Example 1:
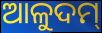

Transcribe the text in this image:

ଆଳୁଦମ୍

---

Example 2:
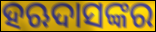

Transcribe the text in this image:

ହଋଦାସଙ୍କର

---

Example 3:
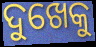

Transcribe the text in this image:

ଦୁଖେକୁ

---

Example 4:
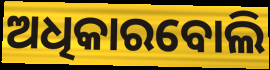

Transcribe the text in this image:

ଅଧିକାରବୋଲି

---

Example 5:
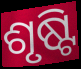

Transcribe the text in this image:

ଶୃଷ୍ଟି